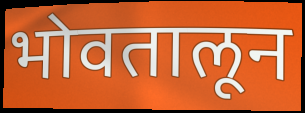
भोवतालून